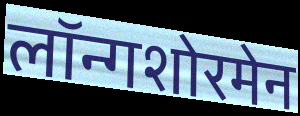
लॉन्गशोरमेन